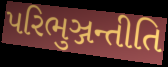
પરિભુઞ્જન્તીતિ